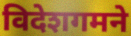
विदेशगमने